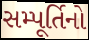
સમ્પૂર્તિનો